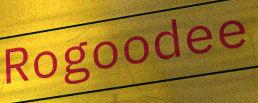
Rogoodee